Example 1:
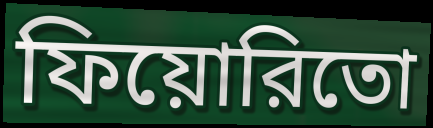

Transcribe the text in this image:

ফিয়োরিতো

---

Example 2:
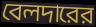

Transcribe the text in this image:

বেলদারের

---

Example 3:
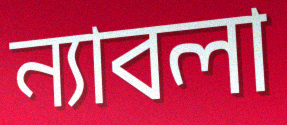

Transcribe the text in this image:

ন্যাবলা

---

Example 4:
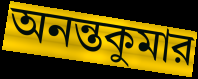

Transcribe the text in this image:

অনন্তকুমার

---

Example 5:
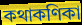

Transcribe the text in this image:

কথাকণিকা